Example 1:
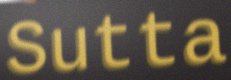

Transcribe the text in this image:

Sutta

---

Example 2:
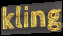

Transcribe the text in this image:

kling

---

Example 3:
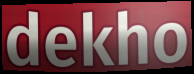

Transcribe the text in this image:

dekho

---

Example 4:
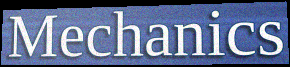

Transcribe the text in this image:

Mechanics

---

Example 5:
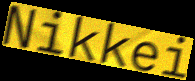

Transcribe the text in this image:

Nikkei